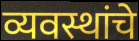
व्यवस्थांचे